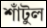
শাঁটুল